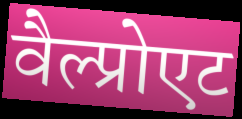
वैल्प्रोएट